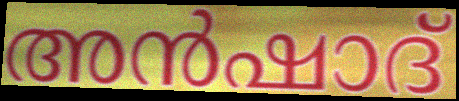
അൻഷാദ്